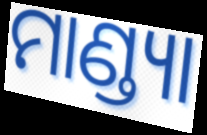
ମାଣ୍ଡ୍ୟା